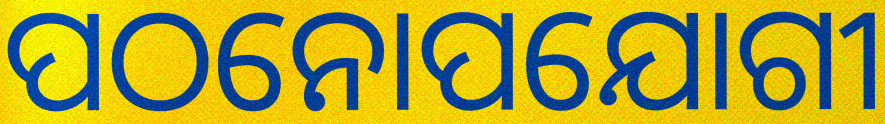
ପଠନୋପଯୋଗୀ